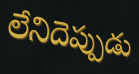
లేనిదెప్పుడు